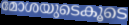
മോശയുടെകൂടെ